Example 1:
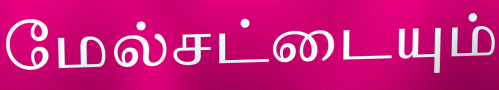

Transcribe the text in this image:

மேல்சட்டையும்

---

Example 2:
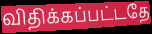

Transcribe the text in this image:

விதிக்கப்பட்டதே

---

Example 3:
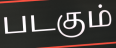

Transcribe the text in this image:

படகும்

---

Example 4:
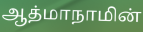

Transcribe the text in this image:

ஆத்மாநாமின்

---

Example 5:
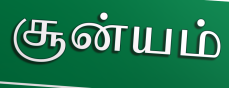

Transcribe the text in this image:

சூன்யம்